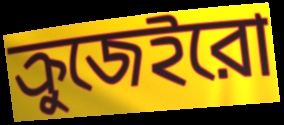
ক্রুজেইরো